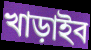
খাড়াইব